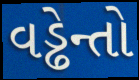
વડ્ઢેન્તો